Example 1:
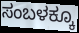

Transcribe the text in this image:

ಸಂಬಳಕ್ಕೂ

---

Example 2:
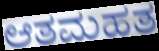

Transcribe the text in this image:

ಆತಮಹತ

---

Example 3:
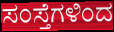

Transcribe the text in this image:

ಸಂಸ್ತೆಗಳಿಂದ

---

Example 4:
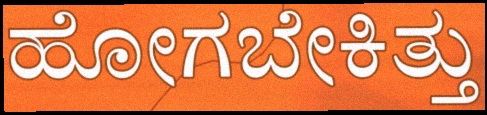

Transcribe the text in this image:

ಹೋಗಬೇಕಿತ್ತು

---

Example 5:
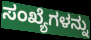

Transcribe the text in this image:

ಸಂಖ್ಯೆಗಳನ್ನು